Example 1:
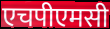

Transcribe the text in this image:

एचपीएमसी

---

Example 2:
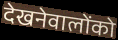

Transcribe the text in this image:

देखनेवालोंको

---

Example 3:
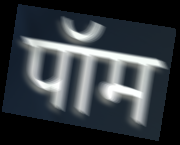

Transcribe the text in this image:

पॉम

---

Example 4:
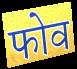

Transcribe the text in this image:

फोव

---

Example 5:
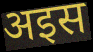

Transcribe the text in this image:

अइस